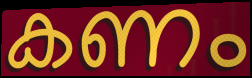
കണം